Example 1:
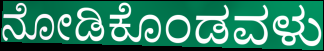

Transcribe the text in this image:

ನೋಡಿಕೊಂಡವಳು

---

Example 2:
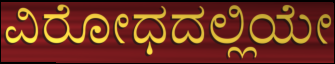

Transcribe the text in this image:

ವಿರೋಧದಲ್ಲಿಯೇ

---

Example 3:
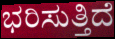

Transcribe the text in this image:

ಭರಿಸುತ್ತಿದೆ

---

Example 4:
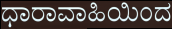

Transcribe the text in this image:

ಧಾರಾವಾಹಿಯಿಂದ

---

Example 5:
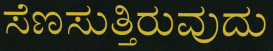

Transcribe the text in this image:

ಸೆಣಸುತ್ತಿರುವುದು